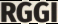
RGGI